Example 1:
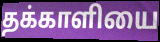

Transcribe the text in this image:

தக்காளியை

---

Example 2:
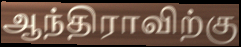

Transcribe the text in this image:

ஆந்திராவிற்கு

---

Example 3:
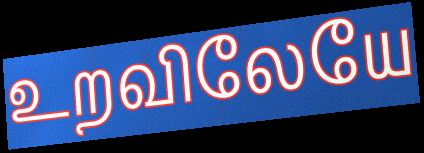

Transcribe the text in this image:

உறவிலேயே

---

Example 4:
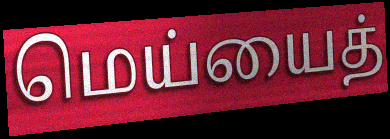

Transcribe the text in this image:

மெய்யைத்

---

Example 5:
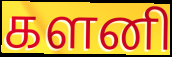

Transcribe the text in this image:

களனி